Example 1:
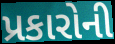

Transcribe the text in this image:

પ્રકારોની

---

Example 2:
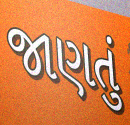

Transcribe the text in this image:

જાણતું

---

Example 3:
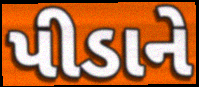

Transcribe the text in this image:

પીડાને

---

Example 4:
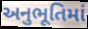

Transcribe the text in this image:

અનુભૂતિમાં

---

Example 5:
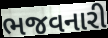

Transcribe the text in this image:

ભજવનારી